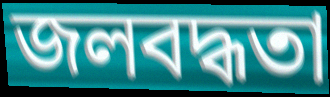
জলবদ্ধতা